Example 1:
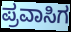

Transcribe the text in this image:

ಪ್ರವಾಸಿಗ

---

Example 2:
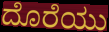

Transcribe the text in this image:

ದೊರೆಯು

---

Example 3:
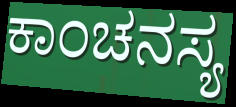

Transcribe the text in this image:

ಕಾಂಚನಸ್ಯ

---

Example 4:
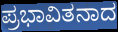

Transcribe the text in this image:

ಪ್ರಭಾವಿತನಾದ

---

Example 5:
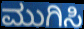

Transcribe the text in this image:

ಮುಗಿಸಿ